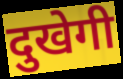
दुखेगी